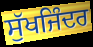
ਸੁੱਖਜਿੰਦਰ